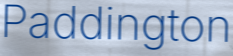
Paddington